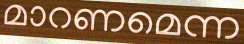
മാറണമെന്ന